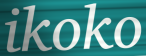
ikoko